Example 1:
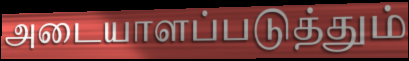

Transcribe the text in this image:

அடையாளப்படுத்தும்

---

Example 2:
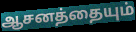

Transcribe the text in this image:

ஆசனத்தையும்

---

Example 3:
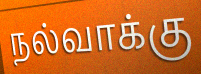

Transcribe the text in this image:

நல்வாக்கு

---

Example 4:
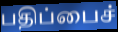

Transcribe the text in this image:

பதிப்பைச்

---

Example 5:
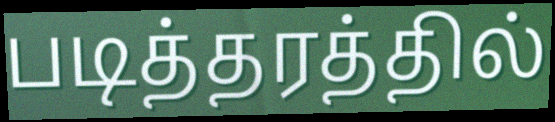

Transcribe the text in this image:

படித்தரத்தில்